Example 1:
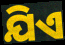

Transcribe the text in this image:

ଯିଏ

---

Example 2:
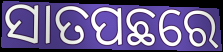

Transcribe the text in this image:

ସାତପଛରେ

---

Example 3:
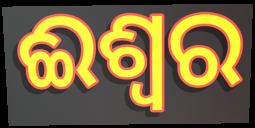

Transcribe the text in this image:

ଈଶ୍ବର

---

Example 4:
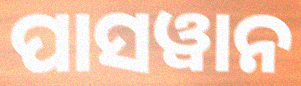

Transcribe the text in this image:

ପାସୱାନ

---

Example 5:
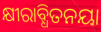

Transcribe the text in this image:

କ୍ଷୀରାବ୍ଧିତନୟା